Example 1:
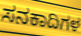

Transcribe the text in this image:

ಸನಕಾದಿಗಳ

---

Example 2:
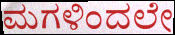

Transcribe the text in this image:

ಮಗಳಿಂದಲೇ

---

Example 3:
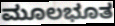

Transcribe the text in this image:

ಮೂಲಭೂತ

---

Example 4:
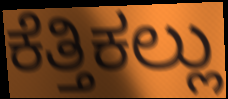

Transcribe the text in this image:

ಕೆತ್ತಿಕಲ್ಲು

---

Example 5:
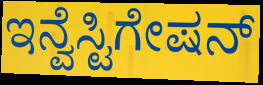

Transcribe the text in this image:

ಇನ್ವೆಸ್ಟಿಗೇಷನ್